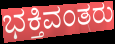
ಭಕ್ತಿವಂತರು